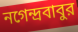
নগেন্দ্রবাবুর